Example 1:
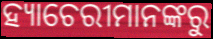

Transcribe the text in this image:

ହ୍ୟାଚେରୀମାନଙ୍କରୁ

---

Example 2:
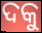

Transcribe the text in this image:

ଦକୁ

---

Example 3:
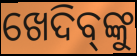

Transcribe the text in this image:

ଖେଦିବ୍‌ଙ୍କୁ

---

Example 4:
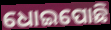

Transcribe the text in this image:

ଧୋଇପୋଛି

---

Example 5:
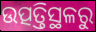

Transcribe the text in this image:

ଉତ୍ପତ୍ତିସ୍ଥଳରୁ